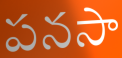
పనసా